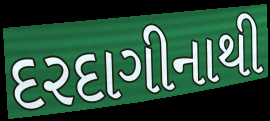
દરદાગીનાથી